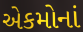
એકમોનાં